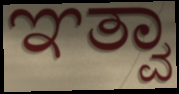
ಞತ್ವಾ